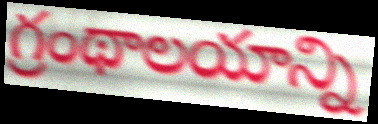
గ్రంథాలయాన్ని